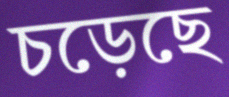
চড়েছে